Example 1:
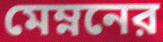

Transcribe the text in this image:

মেম্ননের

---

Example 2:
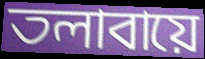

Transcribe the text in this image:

তলাবায়ে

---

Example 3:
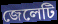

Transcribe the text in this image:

জেলেটি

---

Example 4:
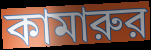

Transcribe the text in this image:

কামারুর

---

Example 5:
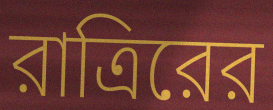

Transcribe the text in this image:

রাত্রিরের